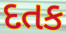
દતક